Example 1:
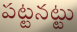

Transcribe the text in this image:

పట్టనట్టు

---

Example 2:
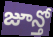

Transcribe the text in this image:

జూన్తో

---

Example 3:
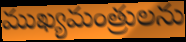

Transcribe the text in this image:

ముఖ్యమంత్రులను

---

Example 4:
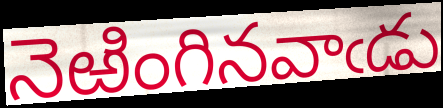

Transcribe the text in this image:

నెఱింగినవాఁడు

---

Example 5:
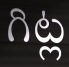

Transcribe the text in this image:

గిట్ల